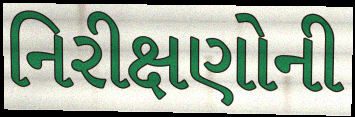
નિરીક્ષણોની